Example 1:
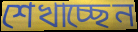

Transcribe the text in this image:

শেখাচ্ছেন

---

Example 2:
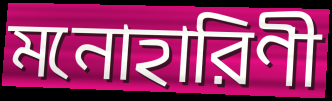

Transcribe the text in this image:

মনোহারিণী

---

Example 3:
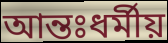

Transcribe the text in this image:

আন্তঃধর্মীয়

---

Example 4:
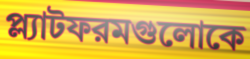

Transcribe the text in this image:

প্ল্যাটফরমগুলোকে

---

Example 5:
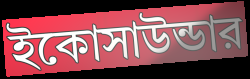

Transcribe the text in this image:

ইকোসাউন্ডার